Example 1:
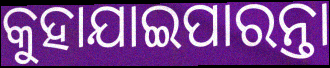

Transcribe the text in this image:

କୁହାଯାଇପାରନ୍ତା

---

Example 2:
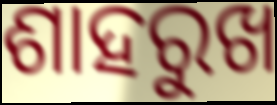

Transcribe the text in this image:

ଶାହରୁଖ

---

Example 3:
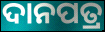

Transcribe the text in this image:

ଦାନପତ୍ର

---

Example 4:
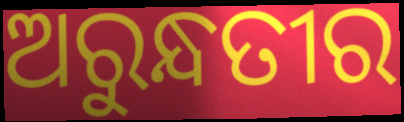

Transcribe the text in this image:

ଅରୁନ୍ଧତୀର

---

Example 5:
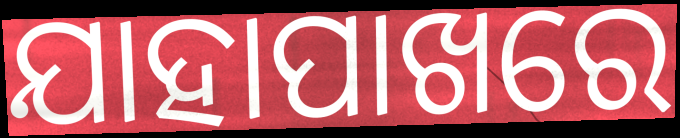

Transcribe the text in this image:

ଯାହାପାଖରେ